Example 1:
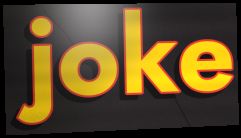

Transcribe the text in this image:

joke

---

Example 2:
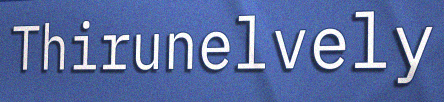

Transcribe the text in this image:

Thirunelvely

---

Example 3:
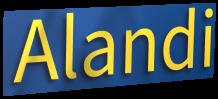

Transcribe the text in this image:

Alandi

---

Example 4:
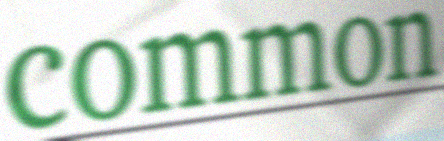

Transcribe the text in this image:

common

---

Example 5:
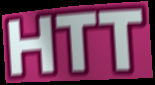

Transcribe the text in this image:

HTT